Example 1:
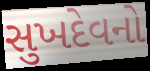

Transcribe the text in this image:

સુખદેવનો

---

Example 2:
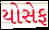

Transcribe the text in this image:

યોસેફ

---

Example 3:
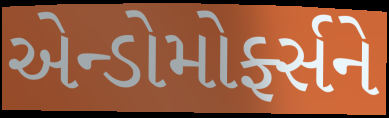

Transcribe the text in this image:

એન્ડોમોર્ફ્સને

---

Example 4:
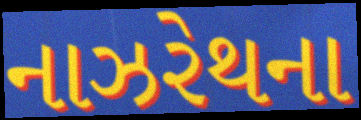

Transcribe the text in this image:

નાઝરેથના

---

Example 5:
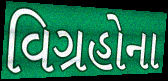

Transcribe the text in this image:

વિગ્રહોના